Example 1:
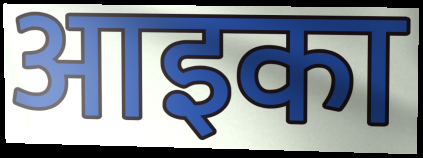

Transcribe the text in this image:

आइका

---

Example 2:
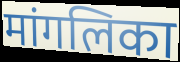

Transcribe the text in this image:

मांगलिका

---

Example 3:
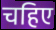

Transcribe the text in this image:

चहिए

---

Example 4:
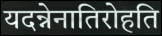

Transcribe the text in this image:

यदन्नेनातिरोहति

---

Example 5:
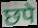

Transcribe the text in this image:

छपे